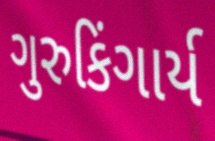
ગુરુકિંગાર્ય